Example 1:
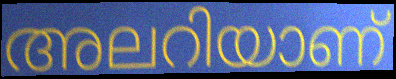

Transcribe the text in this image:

അലറിയാണ്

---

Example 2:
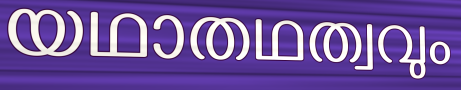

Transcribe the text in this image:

യഥാതഥത്വവും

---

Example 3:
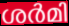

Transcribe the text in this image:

ശർമി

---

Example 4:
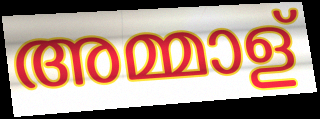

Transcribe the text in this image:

അമ്മാള്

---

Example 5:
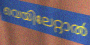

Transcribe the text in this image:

വെയിലേറ്റാൽ